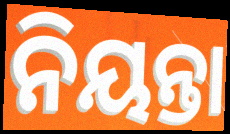
ନିୟନ୍ତା